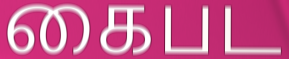
கைபட